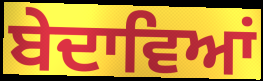
ਬੇਦਾਵਿਆਂ